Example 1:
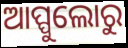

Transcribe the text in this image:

ଆପ୍ପୁଲୋରୁ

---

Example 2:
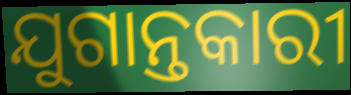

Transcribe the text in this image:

ଯୁଗାନ୍ତକାରୀ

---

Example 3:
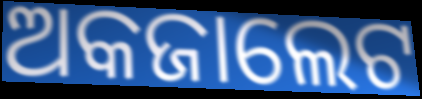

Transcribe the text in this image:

ଅକଜାଲେଟ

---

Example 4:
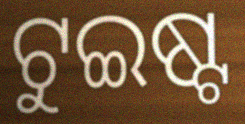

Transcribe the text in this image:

ଟୁଇଷ୍ଟ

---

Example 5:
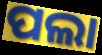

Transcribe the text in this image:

ପଲା